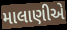
માલાણીએ